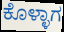
ಕೊಳ್ಳಾಗ